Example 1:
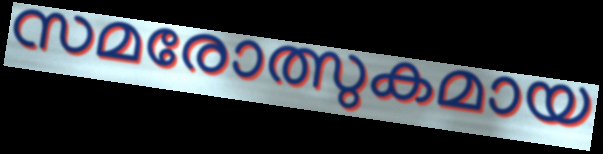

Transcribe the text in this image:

സമരോത്സുകമായ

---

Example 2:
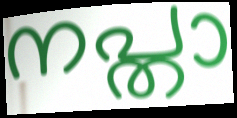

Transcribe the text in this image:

നപ്താ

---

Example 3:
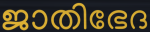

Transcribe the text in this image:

ജാതിഭേദ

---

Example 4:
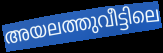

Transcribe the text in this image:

അയലത്തുവീട്ടിലെ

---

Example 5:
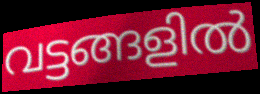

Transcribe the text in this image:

വട്ടങ്ങളിൽ